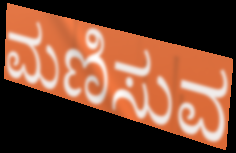
ಮಣಿಸುವ